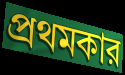
প্রথমকার